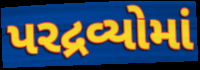
પરદ્રવ્યોમાં